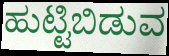
ಹುಟ್ಟಿಬಿಡುವ